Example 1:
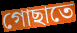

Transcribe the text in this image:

গোছাতে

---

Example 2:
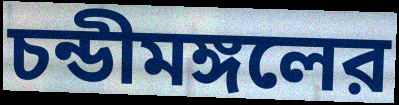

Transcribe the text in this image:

চন্ডীমঙ্গলের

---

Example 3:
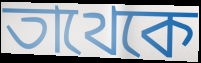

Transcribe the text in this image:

তাথেকে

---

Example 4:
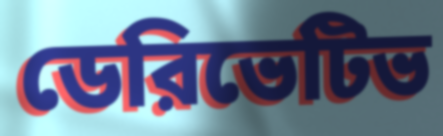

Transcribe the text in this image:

ডেরিভেটিভ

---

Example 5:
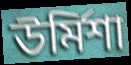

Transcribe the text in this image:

উর্মিশা